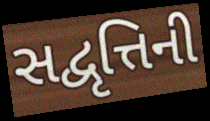
સદ્વૃત્તિની